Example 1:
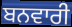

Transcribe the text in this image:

ਬਨਵਾਰੀ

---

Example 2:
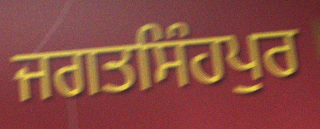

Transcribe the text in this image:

ਜਗਤਸਿੰਹਪੁਰ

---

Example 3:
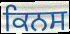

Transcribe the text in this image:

ਕਿਨਸ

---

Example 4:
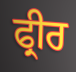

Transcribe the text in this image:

ਫ੍ਰੀਰ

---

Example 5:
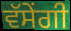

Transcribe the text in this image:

ਵੱਸੇਂਗੀ